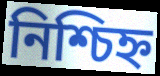
নিশ্চিহ্ন